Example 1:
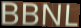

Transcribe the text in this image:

BBNL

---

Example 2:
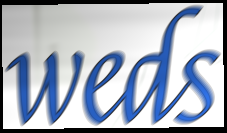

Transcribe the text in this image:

weds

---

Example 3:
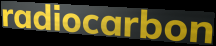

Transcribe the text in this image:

radiocarbon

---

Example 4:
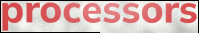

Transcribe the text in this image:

processors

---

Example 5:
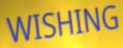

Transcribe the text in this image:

WISHING